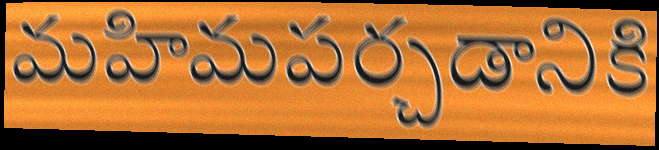
మహిమపర్చడానికి